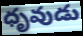
ధృవుడు